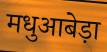
मधुआबेड़ा